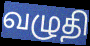
வழுதி